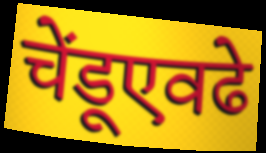
चेंडूएवढे